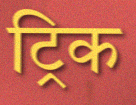
ट्रिक